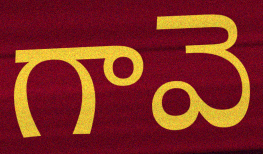
గావె